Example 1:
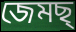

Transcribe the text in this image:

জেমছ্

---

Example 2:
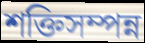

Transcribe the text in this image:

শক্তিসম্পন্ন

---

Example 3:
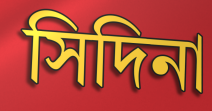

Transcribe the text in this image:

সিদিনা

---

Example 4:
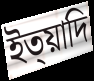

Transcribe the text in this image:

ইত্য়াদি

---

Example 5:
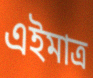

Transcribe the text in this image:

এইমাত্ৰ